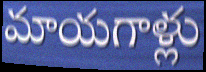
మాయగాళ్లు